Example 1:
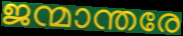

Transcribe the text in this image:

ജന്മാന്തരേ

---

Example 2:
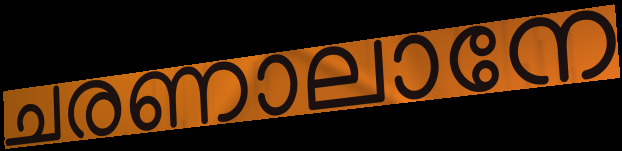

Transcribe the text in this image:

ചരണാലാനേ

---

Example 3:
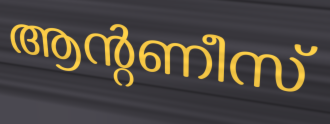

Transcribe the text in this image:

ആന്റണീസ്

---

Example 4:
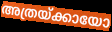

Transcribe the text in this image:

അത്രയ്ക്കായോ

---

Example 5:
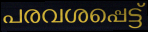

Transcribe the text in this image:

പരവശപ്പെട്ട്